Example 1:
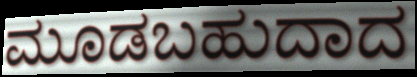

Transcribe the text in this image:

ಮೂಡಬಹುದಾದ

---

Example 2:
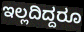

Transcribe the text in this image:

ಇಲ್ಲದಿದ್ದರೂ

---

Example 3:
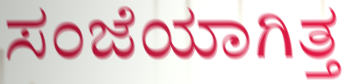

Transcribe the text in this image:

ಸಂಜೆಯಾಗಿತ್ತ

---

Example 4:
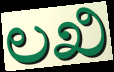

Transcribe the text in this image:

ಲಖಿ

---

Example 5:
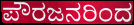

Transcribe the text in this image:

ಪೌರಜನರಿಂದ